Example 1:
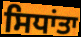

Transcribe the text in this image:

ਸਿਧਾਂਤਾ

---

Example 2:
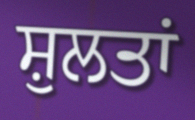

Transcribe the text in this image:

ਸ਼ੁਲਤਾਂ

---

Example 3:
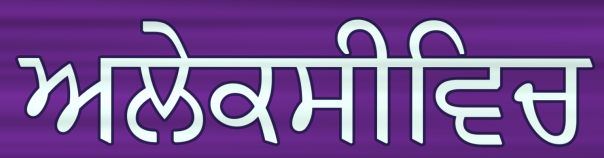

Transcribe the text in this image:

ਅਲੇਕਸੀਵਿਚ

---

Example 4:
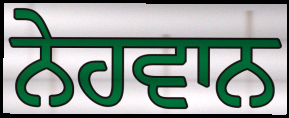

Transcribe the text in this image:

ਨੇਹਵਾਨ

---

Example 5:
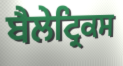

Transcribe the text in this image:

ਬੈਲੇਟ੍ਰਿਕਸ